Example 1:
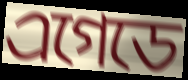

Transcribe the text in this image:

এগেডে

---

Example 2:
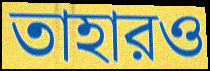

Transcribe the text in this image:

তাহারও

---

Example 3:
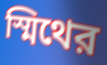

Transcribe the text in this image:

স্মিথের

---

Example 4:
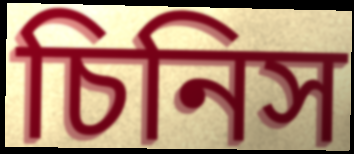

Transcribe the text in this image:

চিনিস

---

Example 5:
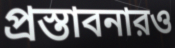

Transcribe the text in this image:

প্রস্তাবনারও